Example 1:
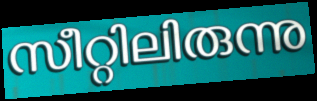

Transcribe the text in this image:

സീറ്റിലിരുന്നു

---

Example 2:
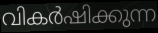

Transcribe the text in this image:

വികർഷിക്കുന്ന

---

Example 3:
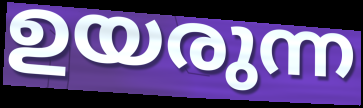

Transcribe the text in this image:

ഉയരുന്ന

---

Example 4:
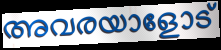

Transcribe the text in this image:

അവരയാളോട്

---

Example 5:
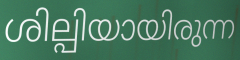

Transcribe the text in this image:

ശില്പിയായിരുന്ന